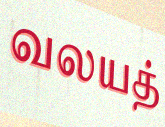
வலயத்